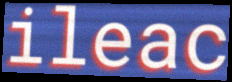
ileac